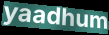
yaadhum